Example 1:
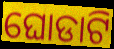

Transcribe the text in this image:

ଘୋଡାଟି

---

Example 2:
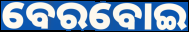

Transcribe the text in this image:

ବେରବୋଇ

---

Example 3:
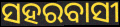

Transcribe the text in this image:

ସହରବାସୀ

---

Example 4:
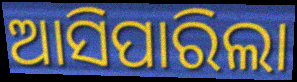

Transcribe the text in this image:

ଆସିପାରିଲା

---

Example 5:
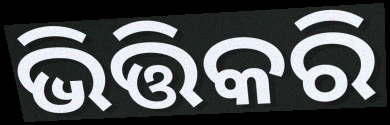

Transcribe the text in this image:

ଭିତ୍ତିକରି